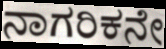
ನಾಗರಿಕನೇ